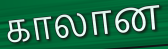
காலான